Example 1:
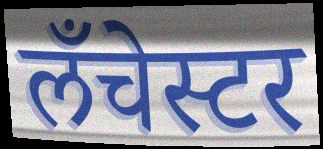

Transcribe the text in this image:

लँचेस्टर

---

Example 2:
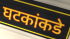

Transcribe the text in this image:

घटकांकडे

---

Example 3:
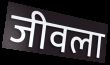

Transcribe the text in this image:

जीवला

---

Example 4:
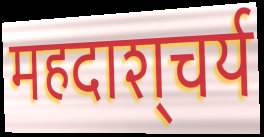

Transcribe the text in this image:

महदाश्चर्य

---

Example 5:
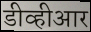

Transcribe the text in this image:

डीव्हीआर